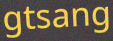
gtsang